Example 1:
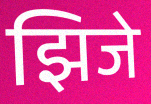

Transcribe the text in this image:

झिजे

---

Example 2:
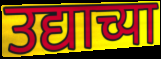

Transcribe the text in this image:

उद्याच्या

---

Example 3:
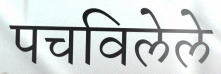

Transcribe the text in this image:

पचविलेले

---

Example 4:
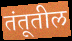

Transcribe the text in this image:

तंतूतील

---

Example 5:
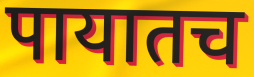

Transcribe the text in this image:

पायातच